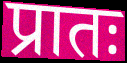
प्रातः